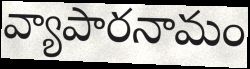
వ్యాపారనామం